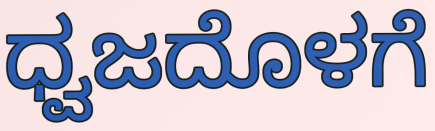
ಧ್ವಜದೊಳಗೆ